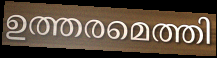
ഉത്തരമെത്തി